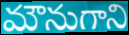
మౌనుగాని